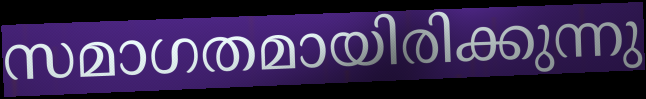
സമാഗതമായിരിക്കുന്നു